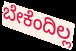
ಬೇಕೆಂದಿಲ್ಲ